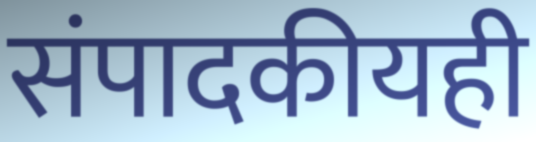
संपादकीयही